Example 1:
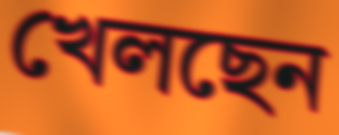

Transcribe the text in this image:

খেলছেন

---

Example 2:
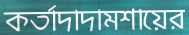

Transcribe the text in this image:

কর্তাদাদামশায়ের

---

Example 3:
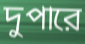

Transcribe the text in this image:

দুপারে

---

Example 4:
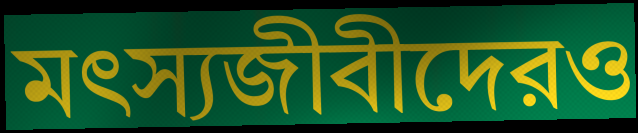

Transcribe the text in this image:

মৎস্যজীবীদেরও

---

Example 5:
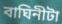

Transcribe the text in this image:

বাঘিনীটা